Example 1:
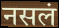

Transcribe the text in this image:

नसलं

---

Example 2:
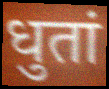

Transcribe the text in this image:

धुतां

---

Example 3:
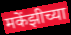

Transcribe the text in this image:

मकेंझीच्या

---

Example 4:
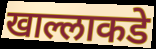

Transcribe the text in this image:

खाल्लाकडे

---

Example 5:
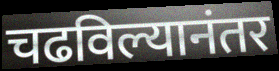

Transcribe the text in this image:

चढविल्यानंतर